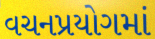
વચનપ્રયોગમાં